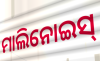
ମାଲିନୋଇସ୍